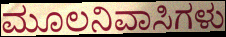
ಮೂಲನಿವಾಸಿಗಳು